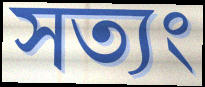
সত্যং